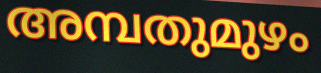
അമ്പതുമുഴം